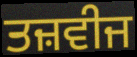
ਤਜ਼ਵੀਜ